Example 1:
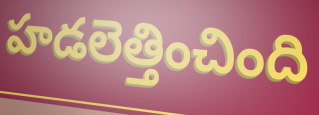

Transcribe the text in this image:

హడలెత్తించింది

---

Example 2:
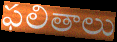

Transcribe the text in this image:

ఫలితాలు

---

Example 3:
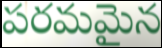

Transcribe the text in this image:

పరమమైన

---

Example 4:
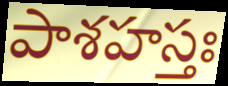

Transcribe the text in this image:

పాశహస్తః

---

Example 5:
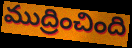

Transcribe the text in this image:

ముద్రించింది